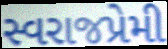
સ્વરાજપ્રેમી